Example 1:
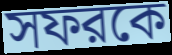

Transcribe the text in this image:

সফরকে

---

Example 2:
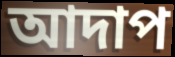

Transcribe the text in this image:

আদাপ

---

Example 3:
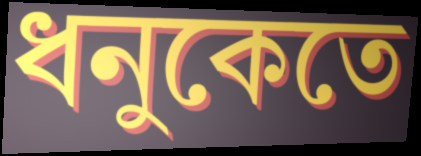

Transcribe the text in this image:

ধনুকেতে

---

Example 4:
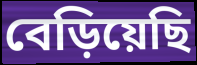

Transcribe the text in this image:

বেড়িয়েছি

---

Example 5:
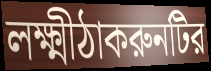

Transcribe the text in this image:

লক্ষ্মীঠাকরুনটির